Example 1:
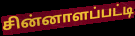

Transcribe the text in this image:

சின்னாளப்பட்டி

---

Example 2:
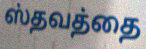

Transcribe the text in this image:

ஸ்தவத்தை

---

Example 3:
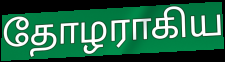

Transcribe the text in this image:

தோழராகிய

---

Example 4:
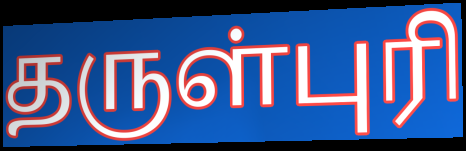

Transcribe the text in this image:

தருள்புரி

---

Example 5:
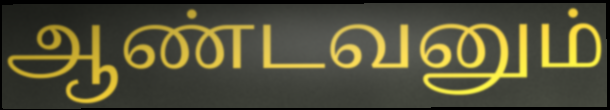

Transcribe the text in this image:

ஆண்டவனும்